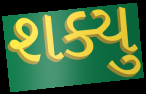
શક્યુ